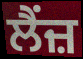
ਲੈਂਜ਼